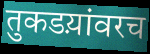
तुकडय़ांवरच